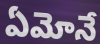
ఏమోనే